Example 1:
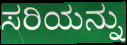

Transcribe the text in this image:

ಸರಿಯನ್ನು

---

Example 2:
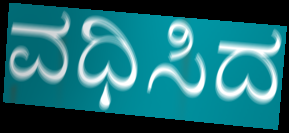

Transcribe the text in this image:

ವಧಿಸಿದ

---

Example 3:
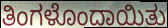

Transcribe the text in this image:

ತಿಂಗಳೊಂದಾಯಿತು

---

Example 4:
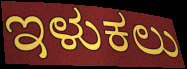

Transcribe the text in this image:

ಇಳುಕಲು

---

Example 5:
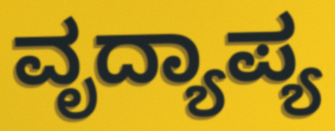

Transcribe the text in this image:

ವೃದ್ಯಾಪ್ಯ